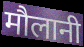
मौलानी